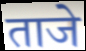
ताजे